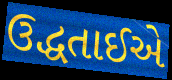
ઉદ્ધતાઈએ